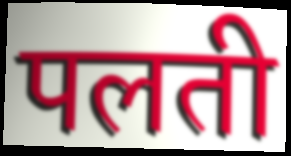
पलती